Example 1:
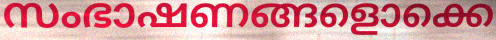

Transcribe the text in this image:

സംഭാഷണങ്ങളൊക്കെ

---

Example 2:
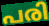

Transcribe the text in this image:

പരി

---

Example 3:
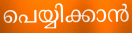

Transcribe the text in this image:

പെയ്യിക്കാൻ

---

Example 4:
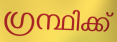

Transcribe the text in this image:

ഗ്രന്ഥിക്ക്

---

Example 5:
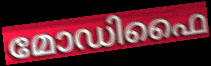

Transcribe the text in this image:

മോഡിഫൈ